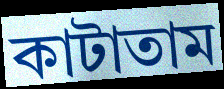
কাটাতাম